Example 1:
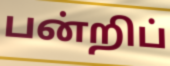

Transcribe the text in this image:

பன்றிப்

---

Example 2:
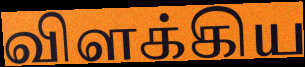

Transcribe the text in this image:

விளக்கிய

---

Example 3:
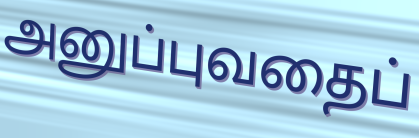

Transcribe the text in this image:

அனுப்புவதைப்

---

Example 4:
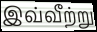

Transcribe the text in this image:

இவ்வீற்று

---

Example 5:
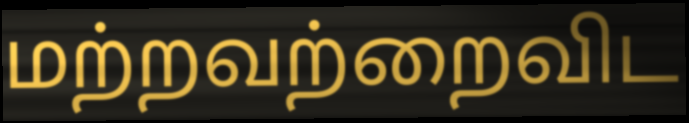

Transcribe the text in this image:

மற்றவற்றைவிட